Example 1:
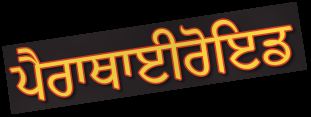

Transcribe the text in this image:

ਪੈਰਾਥਾਈਰੋਇਡ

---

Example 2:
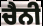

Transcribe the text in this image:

ਚੈਨੀ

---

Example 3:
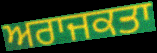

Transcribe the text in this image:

ਅਰਾਜਕਤਾ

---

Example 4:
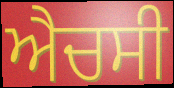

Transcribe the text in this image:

ਐਚਸੀ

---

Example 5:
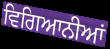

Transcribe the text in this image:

ਵਿਗਿਆਨੀਆਂ